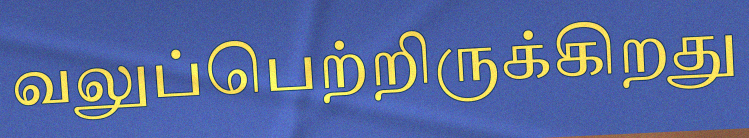
வலுப்பெற்றிருக்கிறது